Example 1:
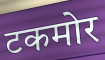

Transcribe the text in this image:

टकमोर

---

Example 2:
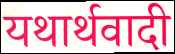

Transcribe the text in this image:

यथार्थवादी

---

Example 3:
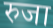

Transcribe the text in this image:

रुजा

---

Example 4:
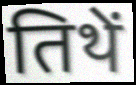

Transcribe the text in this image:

तिथें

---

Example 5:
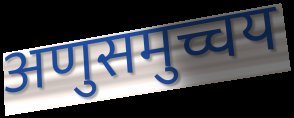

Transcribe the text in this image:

अणुसमुच्चय